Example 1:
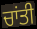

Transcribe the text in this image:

ਚਾਂਤੀ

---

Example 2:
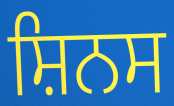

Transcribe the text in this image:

ਸ਼ਿਨਸ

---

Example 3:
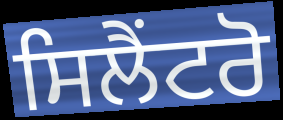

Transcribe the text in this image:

ਸਿਲੈਂਟਰੋ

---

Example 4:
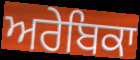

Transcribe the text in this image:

ਅਰੇਬਿਕਾ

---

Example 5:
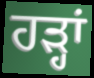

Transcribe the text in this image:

ਹਡ਼੍ਹਾਂ